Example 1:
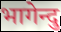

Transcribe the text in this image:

भागेन्दु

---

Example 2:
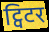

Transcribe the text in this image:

ट्विटर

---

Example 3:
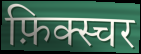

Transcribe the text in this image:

फ़िक्स्चर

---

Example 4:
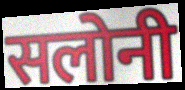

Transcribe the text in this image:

सलोनी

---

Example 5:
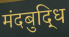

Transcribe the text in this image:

मंदबुद्धि